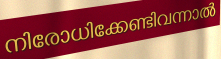
നിരോധിക്കേണ്ടിവന്നാൽ